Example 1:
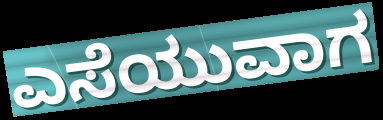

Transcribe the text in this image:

ಎಸೆಯುವಾಗ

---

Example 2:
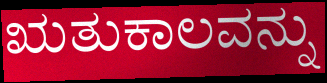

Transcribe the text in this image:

ಋತುಕಾಲವನ್ನು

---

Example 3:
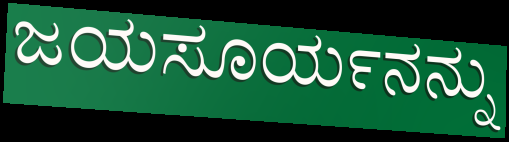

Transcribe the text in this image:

ಜಯಸೂರ್ಯನನ್ನು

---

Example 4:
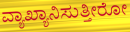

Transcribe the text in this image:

ವ್ಯಾಖ್ಯಾನಿಸುತ್ತೀರೋ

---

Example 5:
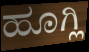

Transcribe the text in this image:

ಹೂಗ್ಲಿ